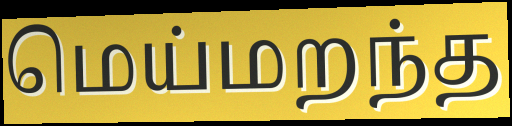
மெய்மறந்த